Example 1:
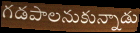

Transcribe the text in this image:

గడపాలనుకున్నాడు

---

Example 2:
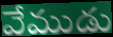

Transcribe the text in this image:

వేముడు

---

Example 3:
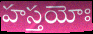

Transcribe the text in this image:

హస్తయోః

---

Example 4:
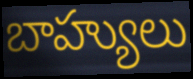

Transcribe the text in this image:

బాహ్యులు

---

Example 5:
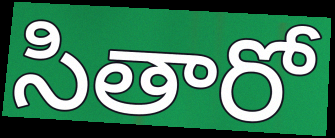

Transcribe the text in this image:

సితారో